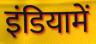
इंडियामें